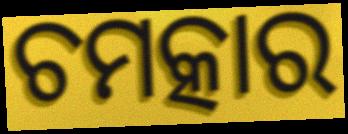
ଚମତ୍କାର